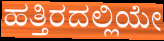
ಹತ್ತಿರದಲ್ಲಿಯೇ